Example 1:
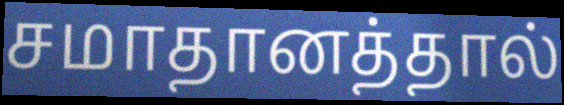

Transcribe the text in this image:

சமாதானத்தால்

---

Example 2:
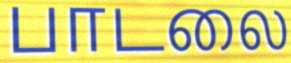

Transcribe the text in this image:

பாடலை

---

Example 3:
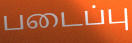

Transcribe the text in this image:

படைப்பு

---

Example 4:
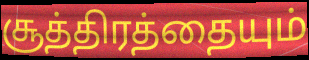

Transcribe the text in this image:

சூத்திரத்தையும்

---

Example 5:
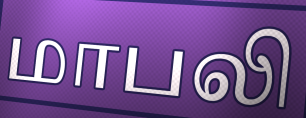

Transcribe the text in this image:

மாபலி